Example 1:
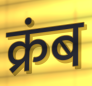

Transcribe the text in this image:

क्रंब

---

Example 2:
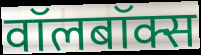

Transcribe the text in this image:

वॉलबॉक्स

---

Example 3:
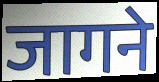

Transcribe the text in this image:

जागने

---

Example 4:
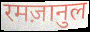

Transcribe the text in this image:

रमज़ानुल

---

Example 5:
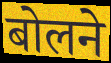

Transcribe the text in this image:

बोलने